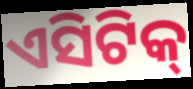
ଏସିଟିକ୍